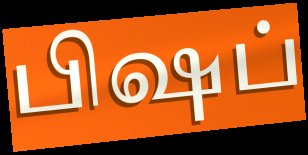
பிஷப்